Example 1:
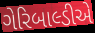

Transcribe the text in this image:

ગેરિબાલ્ડીએ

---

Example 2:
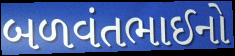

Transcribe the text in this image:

બળવંતભાઈનો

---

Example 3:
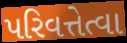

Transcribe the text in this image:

પરિવત્તેત્વા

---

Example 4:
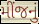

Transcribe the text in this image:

મીંજનું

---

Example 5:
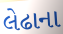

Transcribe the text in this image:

લેઢાના